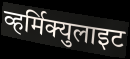
व्हर्मिक्युलाइट